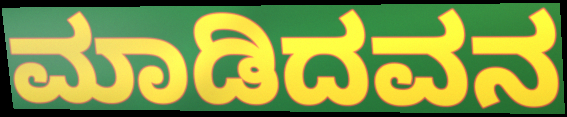
ಮಾಡಿದವನ